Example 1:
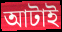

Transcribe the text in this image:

আটাই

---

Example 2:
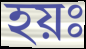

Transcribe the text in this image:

হয়ঃ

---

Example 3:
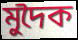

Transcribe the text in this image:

মুদৈক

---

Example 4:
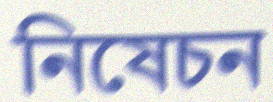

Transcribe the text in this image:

নিষেচন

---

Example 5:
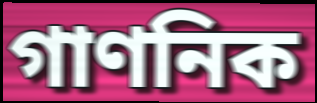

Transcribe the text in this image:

গাণনিক